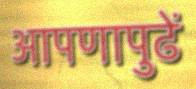
आपणापुढें